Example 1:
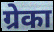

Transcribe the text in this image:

ग्रेका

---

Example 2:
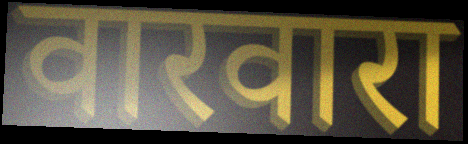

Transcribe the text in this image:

वारवारा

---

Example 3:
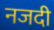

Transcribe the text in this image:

नजदी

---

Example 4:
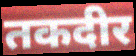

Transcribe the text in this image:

तकदीर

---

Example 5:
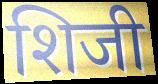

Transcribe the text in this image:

शिजी